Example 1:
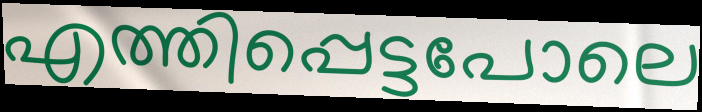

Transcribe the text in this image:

എത്തിപ്പെട്ടപോലെ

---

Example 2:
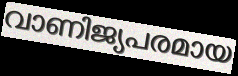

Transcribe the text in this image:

വാണിജ്യപരമായ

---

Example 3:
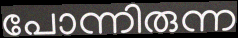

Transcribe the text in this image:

പോന്നിരുന്ന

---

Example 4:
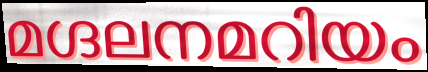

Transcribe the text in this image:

മഗ്ദലനമറിയം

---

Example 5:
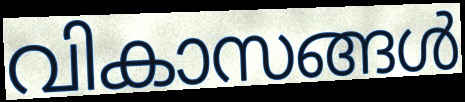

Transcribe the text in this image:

വികാസങ്ങൾ